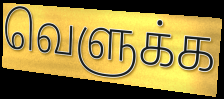
வெளுக்க